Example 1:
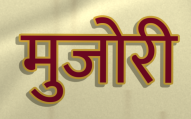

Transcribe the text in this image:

मुजोरी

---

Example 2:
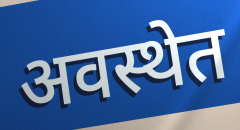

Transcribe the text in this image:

अवस्थेत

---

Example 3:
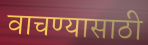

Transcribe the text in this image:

वाचण्यासाठी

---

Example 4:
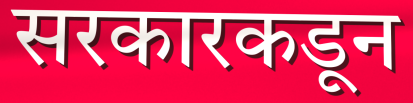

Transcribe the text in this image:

सरकारकडून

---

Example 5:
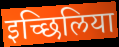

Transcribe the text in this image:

इच्छिलिया